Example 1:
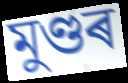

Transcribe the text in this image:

মুণ্ডৰ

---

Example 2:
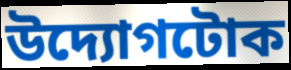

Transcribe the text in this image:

উদ্যোগটোক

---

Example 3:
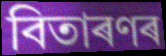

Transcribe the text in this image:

বিতাৰণৰ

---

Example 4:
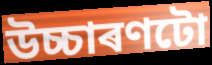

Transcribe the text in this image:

উচ্চাৰণটো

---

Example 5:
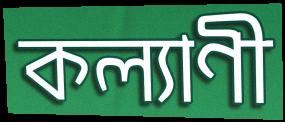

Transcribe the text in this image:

কল্যাণী